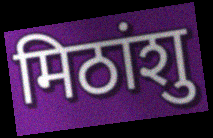
मिठांशु